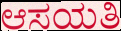
ಆಸಯತಿ